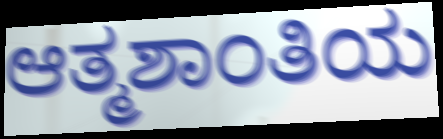
ಆತ್ಮಶಾಂತಿಯ